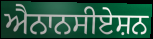
ਐਨਾਨਸੀਏਸ਼ਨ